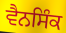
ਵੈਨਸਿੰਕ